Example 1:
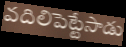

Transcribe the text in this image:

వదిలిపెట్టేసాడు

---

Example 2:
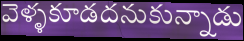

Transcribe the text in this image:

వెళ్ళకూడదనుకున్నాడు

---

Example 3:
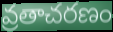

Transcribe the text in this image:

వ్రతాచరణం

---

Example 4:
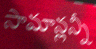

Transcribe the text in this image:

సామాన్లన్నీ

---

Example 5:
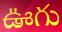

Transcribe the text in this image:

ఊగు